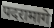
पदरामागे